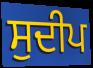
ਸੁਦੀਪ